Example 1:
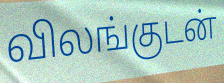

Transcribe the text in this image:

விலங்குடன்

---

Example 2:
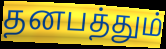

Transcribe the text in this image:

தனபத்தும்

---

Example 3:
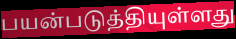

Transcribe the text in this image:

பயன்படுத்தியுள்ளது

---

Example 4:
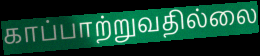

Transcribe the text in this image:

காப்பாற்றுவதில்லை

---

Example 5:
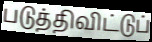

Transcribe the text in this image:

படுத்திவிட்டுப்